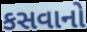
કસવાનો